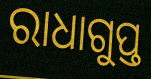
ରାଧାଗୁପ୍ତ